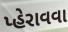
પ્હેરાવવા